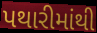
પથારીમાંથી